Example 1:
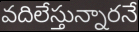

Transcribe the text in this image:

వదిలేస్తున్నారనే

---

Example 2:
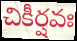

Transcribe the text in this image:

చికీర్షవః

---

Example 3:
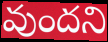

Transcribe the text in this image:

వుందని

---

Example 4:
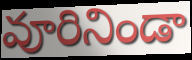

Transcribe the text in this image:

వూరినిండా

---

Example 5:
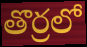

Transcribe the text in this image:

తొర్రలో